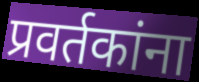
प्रवर्तकांना